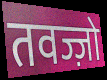
तवज्ज़ो